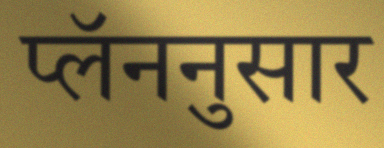
प्लॅननुसार